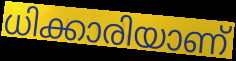
ധിക്കാരിയാണ്